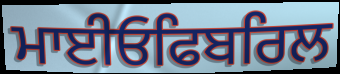
ਮਾਈਓਫਿਬਰਿਲ